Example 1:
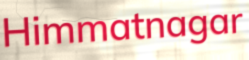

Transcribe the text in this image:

Himmatnagar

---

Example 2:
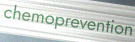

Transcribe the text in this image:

chemoprevention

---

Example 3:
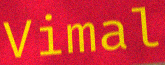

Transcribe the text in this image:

Vimal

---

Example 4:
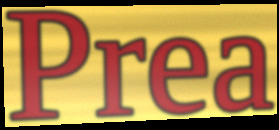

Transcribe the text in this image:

Prea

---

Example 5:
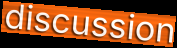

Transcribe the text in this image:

discussion